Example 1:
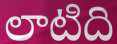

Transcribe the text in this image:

లాటిది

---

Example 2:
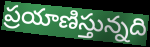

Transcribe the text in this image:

ప్రయాణిస్తున్నది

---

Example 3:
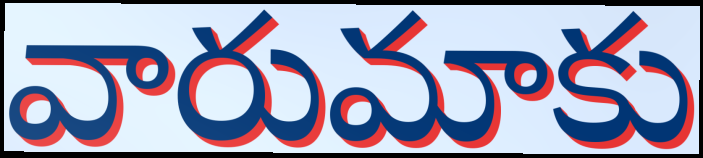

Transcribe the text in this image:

వారుమాకు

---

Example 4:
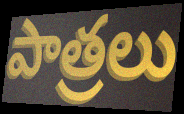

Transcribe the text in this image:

పాత్రలు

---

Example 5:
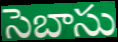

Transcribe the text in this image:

సెబాసు